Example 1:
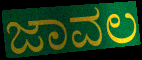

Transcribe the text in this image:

ಜಾವಲ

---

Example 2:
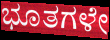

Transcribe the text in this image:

ಭೂತಗಳೇ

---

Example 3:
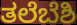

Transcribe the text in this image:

ತಲೆಬೆಶಿ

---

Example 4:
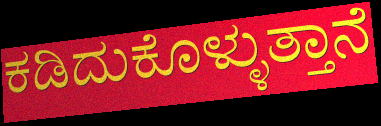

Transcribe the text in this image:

ಕಡಿದುಕೊಳ್ಳುತ್ತಾನೆ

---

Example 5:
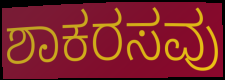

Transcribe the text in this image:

ಶಾಕರಸವು